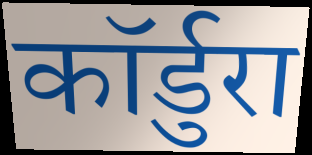
कॉर्डुरा